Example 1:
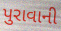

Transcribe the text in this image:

પુરાવાની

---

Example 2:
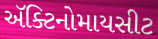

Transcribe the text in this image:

ઍક્ટિનોમાયસીટ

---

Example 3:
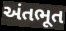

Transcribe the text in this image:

અંતભૂત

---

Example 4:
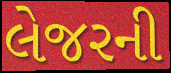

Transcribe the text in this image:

લેજરની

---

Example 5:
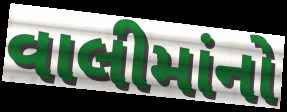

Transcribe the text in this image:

વાલીમાંનો